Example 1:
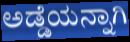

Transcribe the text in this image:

ಅಡ್ಡೆಯನ್ನಾಗಿ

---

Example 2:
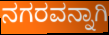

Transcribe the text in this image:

ನಗರವನ್ನಾಗಿ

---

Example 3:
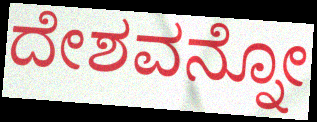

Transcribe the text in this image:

ದೇಶವನ್ನೋ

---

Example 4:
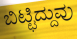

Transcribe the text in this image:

ಬಿಟ್ಟಿದ್ದುವು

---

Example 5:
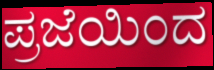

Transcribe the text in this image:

ಪ್ರಜೆಯಿಂದ